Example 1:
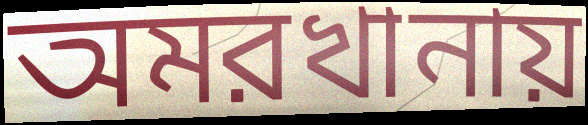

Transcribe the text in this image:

অমরখানায়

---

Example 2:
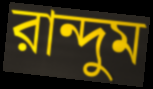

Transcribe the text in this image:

রান্দুম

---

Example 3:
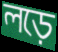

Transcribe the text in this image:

লড়ে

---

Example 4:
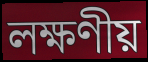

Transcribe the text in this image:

লক্ষণীয়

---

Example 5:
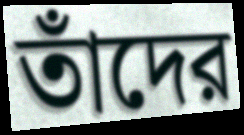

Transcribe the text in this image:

তাঁদের